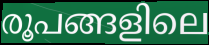
രൂപങ്ങളിലെ